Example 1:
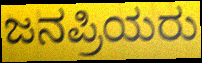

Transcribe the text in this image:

ಜನಪ್ರಿಯರು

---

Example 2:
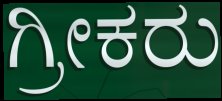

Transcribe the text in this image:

ಗ್ರೀಕರು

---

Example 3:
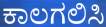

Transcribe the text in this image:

ಕಾಲಗಲಿಸಿ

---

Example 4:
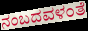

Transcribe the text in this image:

ನಂಬದವಳಂತೆ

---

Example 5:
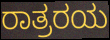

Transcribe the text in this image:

ರಾತ್ರರಯ